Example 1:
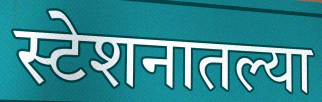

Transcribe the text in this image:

स्टेशनातल्या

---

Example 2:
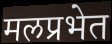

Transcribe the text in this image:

मलप्रभेत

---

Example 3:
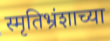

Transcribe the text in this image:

स्मृतिभ्रंशाच्या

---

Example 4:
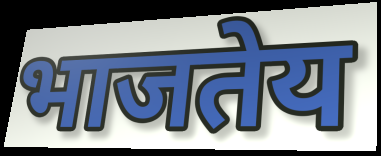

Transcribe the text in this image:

भाजतेय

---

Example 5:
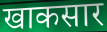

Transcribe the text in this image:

खाकसार